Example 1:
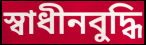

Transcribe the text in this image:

স্বাধীনবুদ্ধি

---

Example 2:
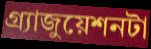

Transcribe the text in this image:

গ্র্যাজুয়েশনটা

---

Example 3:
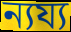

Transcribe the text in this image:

ন্যয্য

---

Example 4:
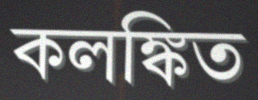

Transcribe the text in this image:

কলঙ্কিত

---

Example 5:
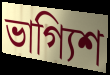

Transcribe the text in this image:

ভাগ্যিশ